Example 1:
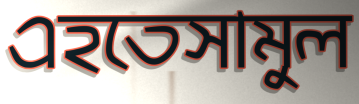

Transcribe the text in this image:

এহতেসামুল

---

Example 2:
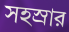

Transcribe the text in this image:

সহস্রার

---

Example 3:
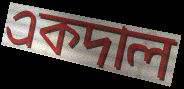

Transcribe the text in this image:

একদাল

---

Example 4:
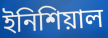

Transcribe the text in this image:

ইনিশিয়াল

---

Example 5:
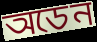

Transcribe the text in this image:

অডেন